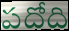
పదోది